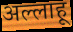
अल्लाहू